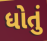
ધોતું